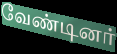
வேண்டினர்